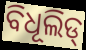
ବିଧୂଲିଡ୍